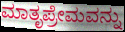
ಮಾತೃಪ್ರೇಮವನ್ನು